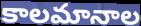
కాలమానాల